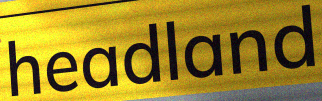
headland